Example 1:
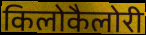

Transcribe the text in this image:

किलोकैलोरी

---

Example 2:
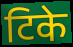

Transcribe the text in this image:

टिके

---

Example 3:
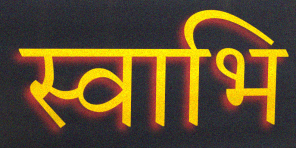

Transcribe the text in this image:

स्वाभि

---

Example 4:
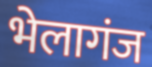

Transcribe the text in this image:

भेलागंज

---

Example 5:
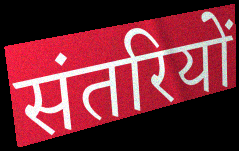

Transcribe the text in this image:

संतरियों